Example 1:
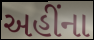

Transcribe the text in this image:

અહીંના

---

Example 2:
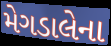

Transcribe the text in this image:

મેગડાલેના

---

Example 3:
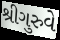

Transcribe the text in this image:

શ્રીગુરુવે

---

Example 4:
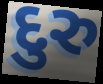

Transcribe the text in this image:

દુરુ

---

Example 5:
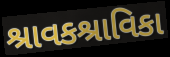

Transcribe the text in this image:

શ્રાવકશ્રાવિકા